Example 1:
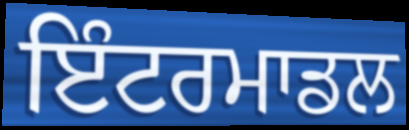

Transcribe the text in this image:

ਇੰਟਰਮਾਡਲ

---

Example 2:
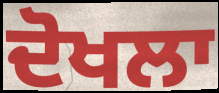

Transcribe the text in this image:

ਦੋਖਲਾ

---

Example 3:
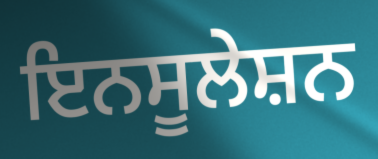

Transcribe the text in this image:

ਇਨਸੂਲੇਸ਼ਨ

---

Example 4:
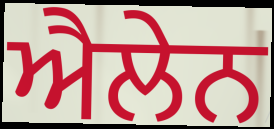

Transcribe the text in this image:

ਐਲੇਨ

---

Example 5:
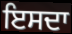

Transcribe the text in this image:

ਇਸਦਾ